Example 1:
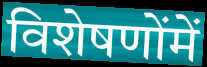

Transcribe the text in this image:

विशेषणोंमें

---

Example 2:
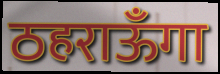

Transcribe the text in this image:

ठहराऊँगा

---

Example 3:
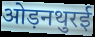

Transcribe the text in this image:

ओड़नथुरई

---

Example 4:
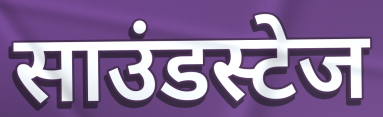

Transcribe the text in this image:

साउंडस्टेज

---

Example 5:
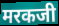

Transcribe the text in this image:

मरकजी